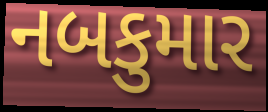
નબકુમાર